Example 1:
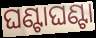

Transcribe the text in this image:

ଘଣ୍ଟାଘଣ୍ଟା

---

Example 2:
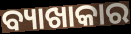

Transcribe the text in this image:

ବ୍ୟାଖାକାର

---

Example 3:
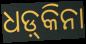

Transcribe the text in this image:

ଧଡ଼୍‍କିନା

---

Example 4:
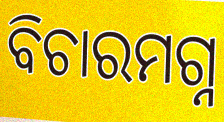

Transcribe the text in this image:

ବିଚାରମଗ୍ନ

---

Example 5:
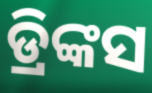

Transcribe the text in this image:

ଡ୍ରିଙ୍କସ